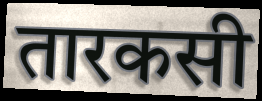
तारकसी